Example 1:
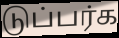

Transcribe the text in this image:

டுப்பர்க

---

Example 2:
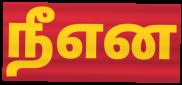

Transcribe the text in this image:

நீஎன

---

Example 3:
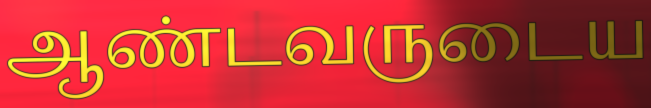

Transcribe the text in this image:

ஆண்டவருடைய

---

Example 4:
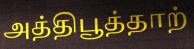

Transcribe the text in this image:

அத்திபூத்தாற்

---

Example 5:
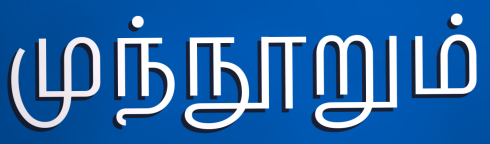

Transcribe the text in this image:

முந்நூறும்